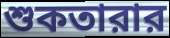
শুকতারার